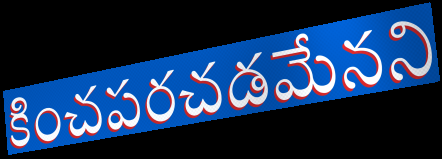
కించపరచడమేనని